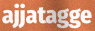
ajjatagge